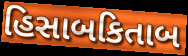
હિસાબકિતાબ